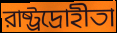
রাষ্ট্রদ্রোহীতা